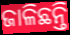
ଜାଳିଛନ୍ତି